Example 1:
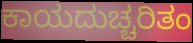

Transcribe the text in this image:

ಕಾಯದುಚ್ಚರಿತಂ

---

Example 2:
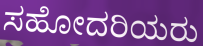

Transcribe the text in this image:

ಸಹೋದರಿಯರು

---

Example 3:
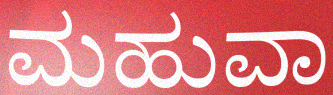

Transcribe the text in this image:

ಮಹುವಾ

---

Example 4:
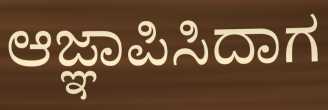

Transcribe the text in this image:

ಆಜ್ಞಾಪಿಸಿದಾಗ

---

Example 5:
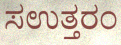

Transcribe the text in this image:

ಸಉತ್ತರಂ